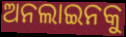
ଅନଲାଇନକୁ